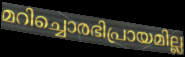
മറിച്ചൊരഭിപ്രായമില്ല